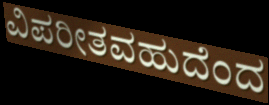
ವಿಪರೀತವಹುದೆಂದ